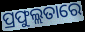
ପ୍ରଫୁଲ୍ଲତାରେ